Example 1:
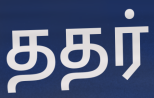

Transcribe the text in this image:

ததர்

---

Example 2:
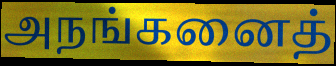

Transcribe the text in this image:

அநங்கனைத்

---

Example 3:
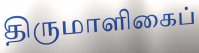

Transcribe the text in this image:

திருமாளிகைப்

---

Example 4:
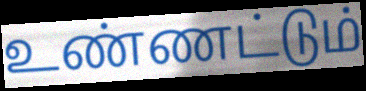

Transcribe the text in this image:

உண்ணட்டும்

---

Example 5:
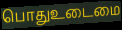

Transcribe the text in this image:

பொதுஉடைமை